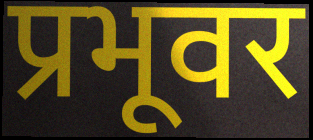
प्रभूवर